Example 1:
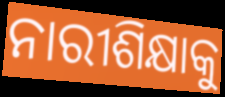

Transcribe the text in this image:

ନାରୀଶିକ୍ଷାକୁ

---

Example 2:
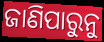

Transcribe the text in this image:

ଜାଣିପାରୁନୁ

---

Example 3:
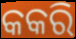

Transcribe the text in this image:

କକରି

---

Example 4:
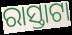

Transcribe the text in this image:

ରାସ୍ତାଟା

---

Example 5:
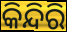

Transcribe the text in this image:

କିନ୍ଦିରି